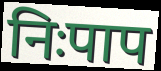
निःपाप